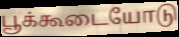
பூக்கூடையோடு